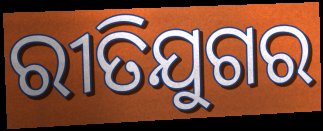
ରୀତିଯୁଗର